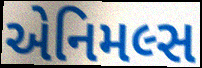
એનિમલ્સ